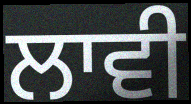
ਲਾਵੀ